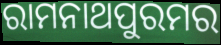
ରାମନାଥପୁରମର